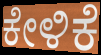
ಕೇಳಿಕೆ